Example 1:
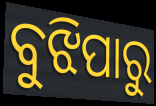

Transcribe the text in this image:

ବୁଝିପାରୁ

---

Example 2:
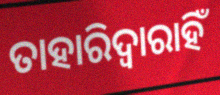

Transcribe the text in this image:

ତାହାରିଦ୍ୱାରାହିଁ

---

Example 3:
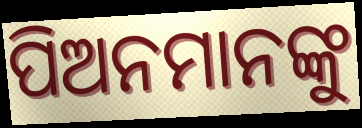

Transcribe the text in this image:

ପିଅନମାନଙ୍କୁ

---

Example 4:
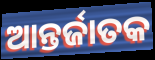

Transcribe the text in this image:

ଆନ୍ତର୍ଜାତକ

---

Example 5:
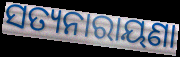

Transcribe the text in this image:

ସତ୍ୟନାରାୟଣା